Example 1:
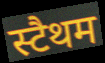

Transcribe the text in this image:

स्टैथम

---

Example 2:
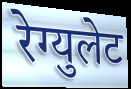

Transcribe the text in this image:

रेग्‍युलेट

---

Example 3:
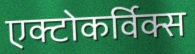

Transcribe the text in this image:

एक्टोकर्विक्स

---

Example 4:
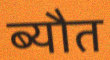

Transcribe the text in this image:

ब्यौत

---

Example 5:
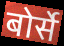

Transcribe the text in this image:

बोर्से